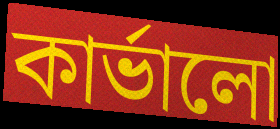
কার্ভালো